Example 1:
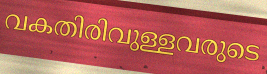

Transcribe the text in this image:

വകതിരിവുള്ളവരുടെ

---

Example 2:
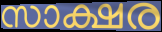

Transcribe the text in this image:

സാക്ഷര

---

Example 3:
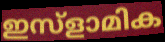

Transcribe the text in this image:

ഇസ്ളാമിക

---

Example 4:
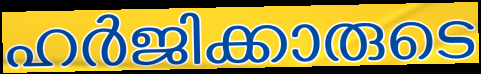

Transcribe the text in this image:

ഹർജിക്കാരുടെ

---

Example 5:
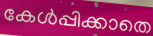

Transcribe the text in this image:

കേൾപ്പിക്കാതെ